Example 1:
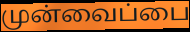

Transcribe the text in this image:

முன்வைப்பை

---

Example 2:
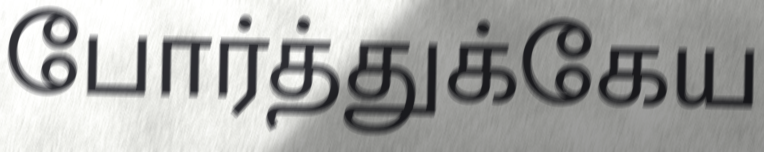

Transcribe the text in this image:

போர்த்துக்கேய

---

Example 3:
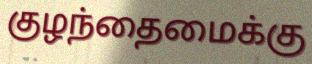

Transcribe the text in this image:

குழந்தைமைக்கு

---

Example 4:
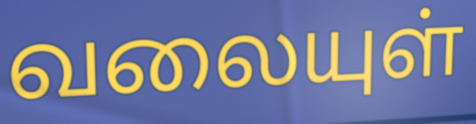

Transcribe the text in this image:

வலையுள்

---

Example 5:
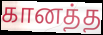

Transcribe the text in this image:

கானத்த